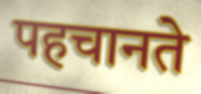
पहचानते